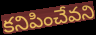
కనిపించేవని